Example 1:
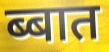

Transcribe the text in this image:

ब्बात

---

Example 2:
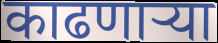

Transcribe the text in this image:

काढणार्‍या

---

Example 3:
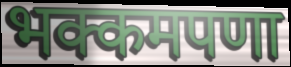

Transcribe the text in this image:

भक्कमपणा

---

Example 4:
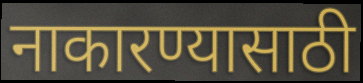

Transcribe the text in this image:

नाकारण्यासाठी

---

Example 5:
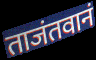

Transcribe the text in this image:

ताजंतवानं